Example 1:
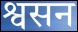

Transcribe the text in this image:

श्वसन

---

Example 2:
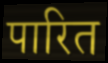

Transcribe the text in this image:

पारित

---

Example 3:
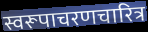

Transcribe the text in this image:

स्वरूपाचरणचारित्र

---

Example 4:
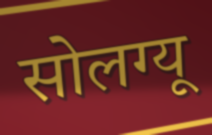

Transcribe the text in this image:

सोलग्यू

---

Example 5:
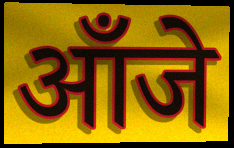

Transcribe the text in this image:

आँजे